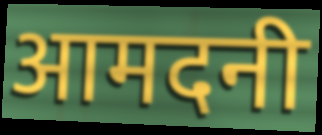
आमदनी